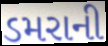
ડમરાની